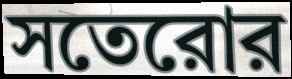
সতেরোর